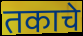
तकाचे